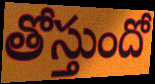
తోస్తుందో